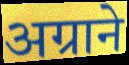
अग्राने